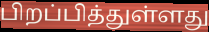
பிறப்பித்துள்ளது